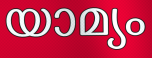
യാമ്യം